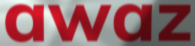
awaz